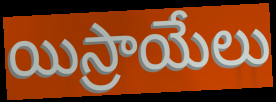
యిస్రాయేలు